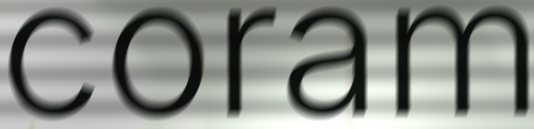
coram